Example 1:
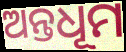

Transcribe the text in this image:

ଅନ୍ତଧୂମ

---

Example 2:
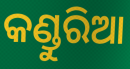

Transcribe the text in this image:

କଣ୍ଡୁରିଆ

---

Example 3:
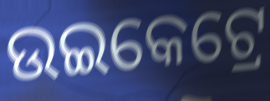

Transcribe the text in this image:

ଉଇକେଟ୍ରେ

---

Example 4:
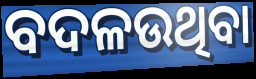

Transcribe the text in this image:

ବଦଳଉଥିବା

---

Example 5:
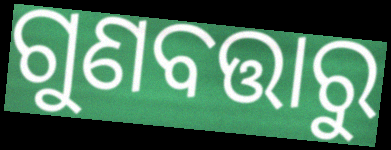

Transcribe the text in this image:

ଗୁଣବତ୍ତାରୁ